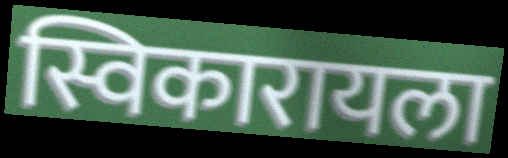
स्विकारायला